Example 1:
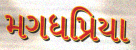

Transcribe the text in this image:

મગધપ્રિયા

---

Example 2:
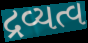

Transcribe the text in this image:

દ્રવ્યત્વ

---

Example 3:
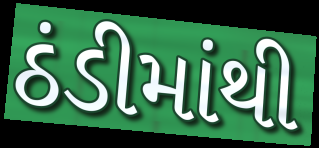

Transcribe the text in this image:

ઠંડીમાંથી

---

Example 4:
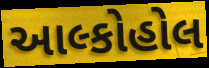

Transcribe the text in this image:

આલ્કોહોલ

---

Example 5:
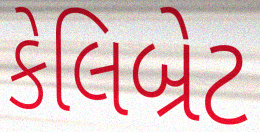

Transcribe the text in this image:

કેલિબ્રેટ